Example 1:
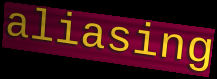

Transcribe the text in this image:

aliasing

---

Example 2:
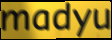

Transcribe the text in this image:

madyu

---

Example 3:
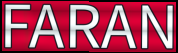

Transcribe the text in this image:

FARAN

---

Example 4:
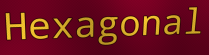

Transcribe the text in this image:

Hexagonal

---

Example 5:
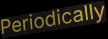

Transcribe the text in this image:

Periodically